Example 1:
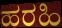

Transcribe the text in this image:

ಹರಹಿ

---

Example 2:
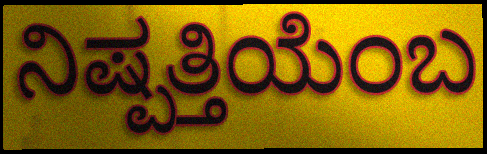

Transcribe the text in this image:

ನಿಷ್ಪತ್ತಿಯೆಂಬ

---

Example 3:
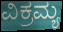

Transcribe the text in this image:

ವಿಕ್ರಮ್ಯ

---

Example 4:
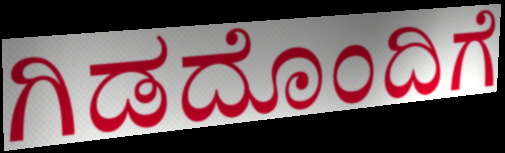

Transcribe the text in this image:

ಗಿಡದೊಂದಿಗೆ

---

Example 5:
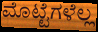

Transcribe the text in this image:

ಮೊಟ್ಟೆಗಳೆಲ್ಲ